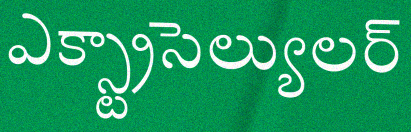
ఎక్స్ట్రాసెల్యులర్